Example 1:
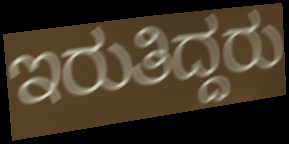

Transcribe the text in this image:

ಇರುತಿದ್ದರು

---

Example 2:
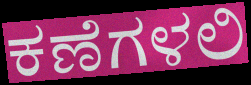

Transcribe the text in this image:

ಕಣೆಗಳಲಿ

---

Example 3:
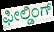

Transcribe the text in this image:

ಫೀಲ್ಡಿಂಗ್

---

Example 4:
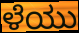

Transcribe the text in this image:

ಳೆಯು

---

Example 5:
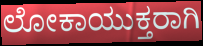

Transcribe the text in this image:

ಲೋಕಾಯುಕ್ತರಾಗಿ